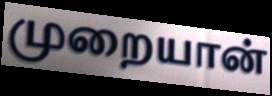
முறையான்